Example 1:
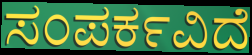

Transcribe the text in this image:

ಸಂಪರ್ಕವಿದೆ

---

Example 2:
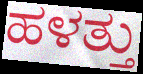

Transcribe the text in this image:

ಹಳತ್ತು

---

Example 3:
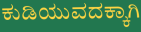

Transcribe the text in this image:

ಕುಡಿಯುವದಕ್ಕಾಗಿ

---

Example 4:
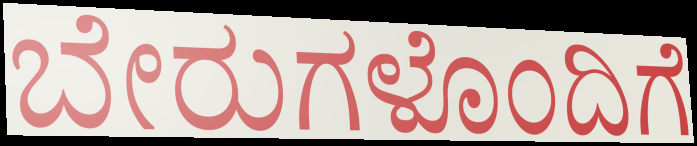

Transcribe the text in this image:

ಬೇರುಗಳೊಂದಿಗೆ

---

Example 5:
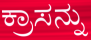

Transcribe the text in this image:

ಕ್ರಾಸನ್ನು